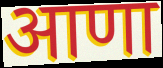
आणा